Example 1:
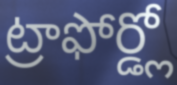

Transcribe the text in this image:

ట్రాఫోర్డ్లో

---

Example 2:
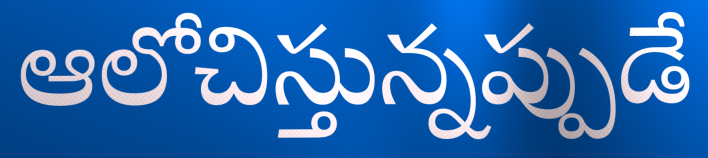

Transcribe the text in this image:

ఆలోచిస్తున్నప్పుడే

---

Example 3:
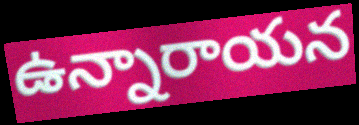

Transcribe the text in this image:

ఉన్నారాయన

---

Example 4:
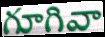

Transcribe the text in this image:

గూగివా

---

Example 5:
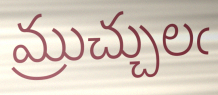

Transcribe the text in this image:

మ్రుచ్చులఁ